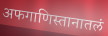
अफगाणिस्तानातलं